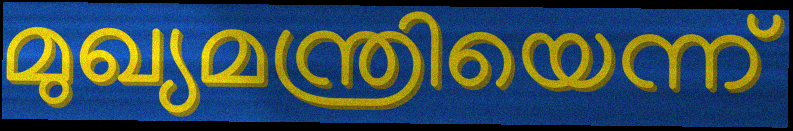
മുഖ്യമന്ത്രിയെന്ന്